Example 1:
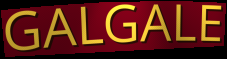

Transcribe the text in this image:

GALGALE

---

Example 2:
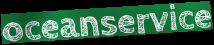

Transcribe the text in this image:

oceanservice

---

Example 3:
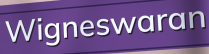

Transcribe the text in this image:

Wigneswaran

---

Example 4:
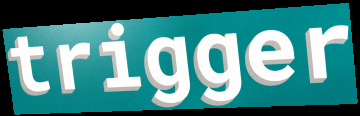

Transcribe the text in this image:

trigger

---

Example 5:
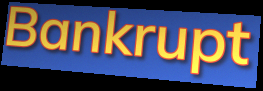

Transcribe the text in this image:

Bankrupt